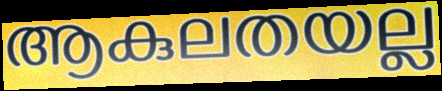
ആകുലതയല്ല